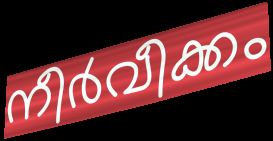
നീർവീക്കം